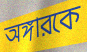
অঙ্গারকে